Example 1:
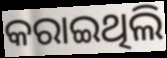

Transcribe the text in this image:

କରାଇଥିଲି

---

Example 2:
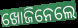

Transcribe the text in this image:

ଖୋଜିନେଲେ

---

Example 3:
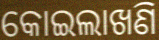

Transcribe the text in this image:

କୋଇଲାଖଣି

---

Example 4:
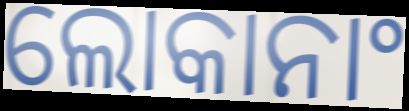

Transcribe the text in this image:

ଲୋକାନାଂ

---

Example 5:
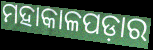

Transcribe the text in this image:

ମହାକାଳପଡ଼ାର